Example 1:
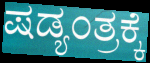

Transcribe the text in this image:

ಷಡ್ಯಂತ್ರಕ್ಕೆ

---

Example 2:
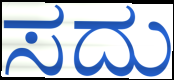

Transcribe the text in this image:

ಸದು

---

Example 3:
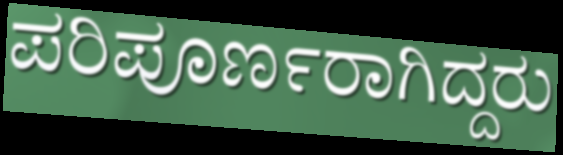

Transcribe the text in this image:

ಪರಿಪೂರ್ಣರಾಗಿದ್ದರು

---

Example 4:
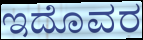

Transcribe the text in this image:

ಇದೊವರ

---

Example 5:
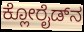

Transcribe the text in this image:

ಕ್ಲೋರೈಡ್‍ನ